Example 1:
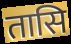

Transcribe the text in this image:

तासि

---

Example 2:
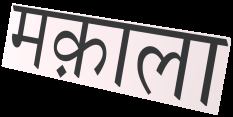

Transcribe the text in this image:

मक़ाला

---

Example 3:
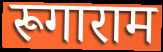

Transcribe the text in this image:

रूगाराम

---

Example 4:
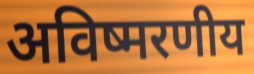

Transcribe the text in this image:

अविष्मरणीय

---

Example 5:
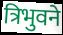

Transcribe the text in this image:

त्रिभुवने